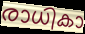
രാധികാ